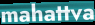
mahattva